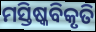
ମସ୍ତିଷ୍କବିକୃତି